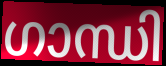
ഗാന്ധി